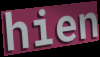
hien